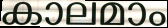
കാലമാം